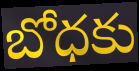
బోధకు